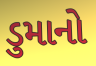
ડુમાનો